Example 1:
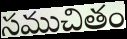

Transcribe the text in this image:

సముచితం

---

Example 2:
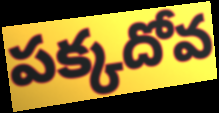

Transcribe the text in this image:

పక్కదోవ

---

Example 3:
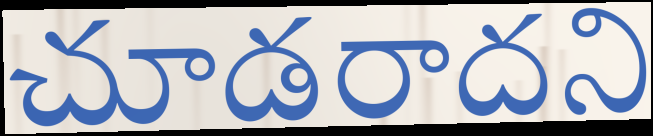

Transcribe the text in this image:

చూడరాదని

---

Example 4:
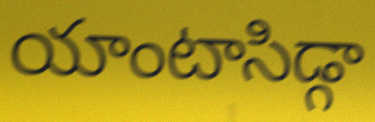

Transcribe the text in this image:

యాంటాసిడ్గా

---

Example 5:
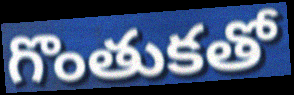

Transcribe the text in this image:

గొంతుకతో